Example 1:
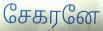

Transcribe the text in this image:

சேகரனே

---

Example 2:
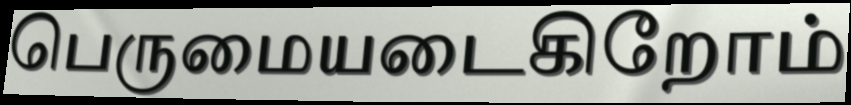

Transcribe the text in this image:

பெருமையடைகிறோம்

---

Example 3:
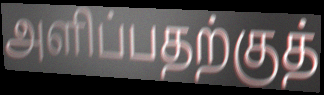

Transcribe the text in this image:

அளிப்பதற்குத்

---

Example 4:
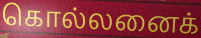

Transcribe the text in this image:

கொல்லனைக்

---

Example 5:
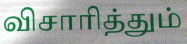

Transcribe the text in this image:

விசாரித்தும்